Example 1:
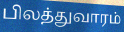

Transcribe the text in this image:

பிலத்துவாரம்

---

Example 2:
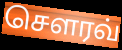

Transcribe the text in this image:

சௌரவ்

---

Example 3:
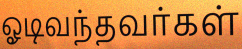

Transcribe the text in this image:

ஓடிவந்தவர்கள்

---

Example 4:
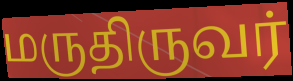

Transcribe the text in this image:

மருதிருவர்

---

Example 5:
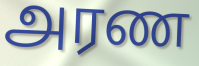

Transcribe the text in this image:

அரண